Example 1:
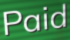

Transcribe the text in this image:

Paid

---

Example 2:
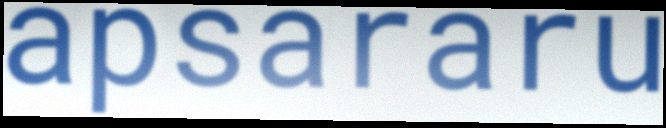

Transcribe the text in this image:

apsararu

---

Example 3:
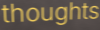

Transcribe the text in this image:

thoughts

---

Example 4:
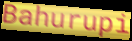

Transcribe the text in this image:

Bahurupi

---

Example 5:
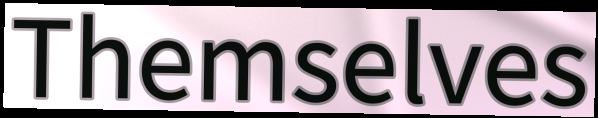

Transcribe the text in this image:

Themselves